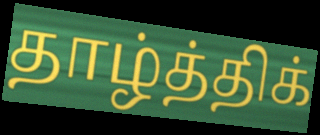
தாழ்த்திக்